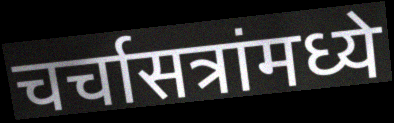
चर्चासत्रांमध्ये